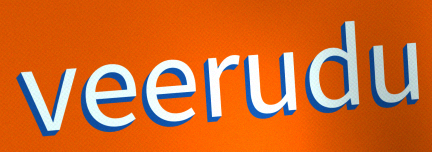
veerudu